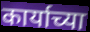
कार्याच्या